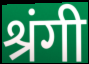
श्रंगी